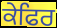
ਕੇਫਿਰ